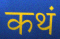
कथं